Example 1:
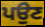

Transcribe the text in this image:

ਪਉਣ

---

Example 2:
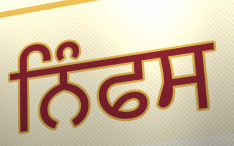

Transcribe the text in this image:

ਨਿੰਫਸ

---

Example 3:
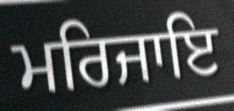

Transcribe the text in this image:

ਮਰਿਜਾਇ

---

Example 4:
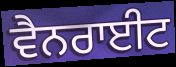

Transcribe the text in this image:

ਵੈਨਰਾਈਟ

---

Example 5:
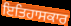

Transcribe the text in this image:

ਇਤਿਹਾਸਕਾਰ